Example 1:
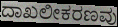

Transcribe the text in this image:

ದಾಖಲೀಕರಣವು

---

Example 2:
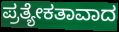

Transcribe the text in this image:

ಪ್ರತ್ಯೇಕತಾವಾದ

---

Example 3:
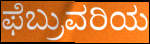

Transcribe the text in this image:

ಫೆಬ್ರುವರಿಯ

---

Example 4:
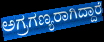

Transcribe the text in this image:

ಅಗ್ರಗಣ್ಯರಾಗಿದ್ದಾರೆ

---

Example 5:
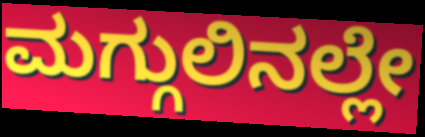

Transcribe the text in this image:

ಮಗ್ಗುಲಿನಲ್ಲೇ